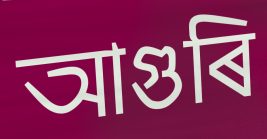
আগুৰি